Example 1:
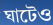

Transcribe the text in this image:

ঘাটেও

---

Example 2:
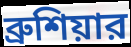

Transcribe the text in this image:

ব্রুশিয়ার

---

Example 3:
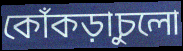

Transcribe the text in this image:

কোঁকড়াচুলো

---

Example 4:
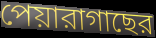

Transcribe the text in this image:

পেয়ারাগাছের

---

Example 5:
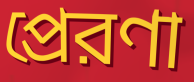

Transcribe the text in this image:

প্রেরণা